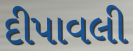
દીપાવલી